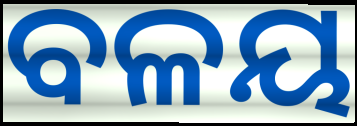
ବଳୟ